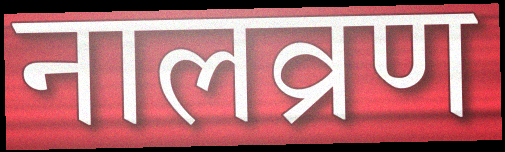
नालव्रण